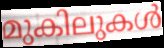
മുകിലുകൾ